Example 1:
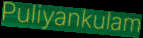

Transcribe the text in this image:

Puliyankulam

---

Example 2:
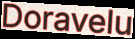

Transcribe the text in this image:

Doravelu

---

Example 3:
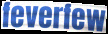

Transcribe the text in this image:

feverfew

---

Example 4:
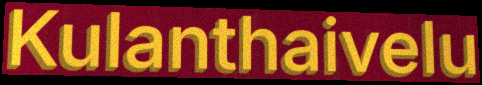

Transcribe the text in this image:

Kulanthaivelu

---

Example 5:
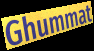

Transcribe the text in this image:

Ghummat